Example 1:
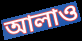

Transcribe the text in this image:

আলাও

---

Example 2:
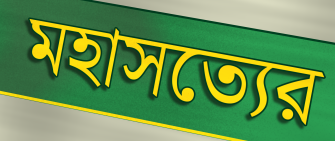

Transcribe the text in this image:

মহাসত্যের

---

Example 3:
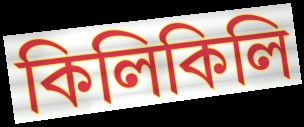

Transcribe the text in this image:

কিলিকিলি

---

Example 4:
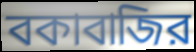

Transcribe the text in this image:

বকাবাজির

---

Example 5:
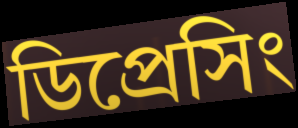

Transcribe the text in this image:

ডিপ্রেসিং